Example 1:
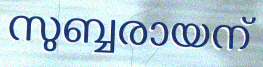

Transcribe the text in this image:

സുബ്ബരായന്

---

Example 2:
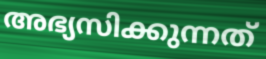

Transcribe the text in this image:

അഭ്യസിക്കുന്നത്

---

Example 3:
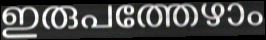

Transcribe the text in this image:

ഇരുപത്തേഴാം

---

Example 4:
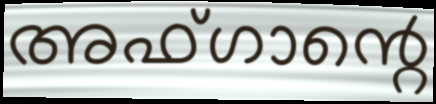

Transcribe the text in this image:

അഫ്ഗാന്റെ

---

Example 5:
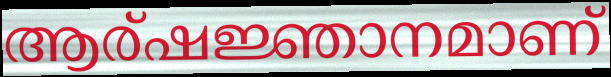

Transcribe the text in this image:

ആര്ഷജ്ഞാനമാണ്